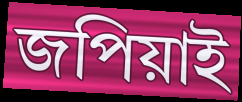
জপিয়াই